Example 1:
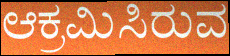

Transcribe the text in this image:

ಆಕ್ರಮಿಸಿರುವ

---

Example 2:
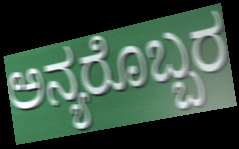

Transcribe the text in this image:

ಅನ್ಯರೊಬ್ಬರ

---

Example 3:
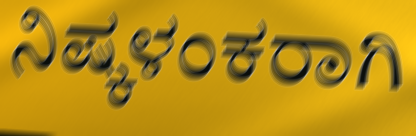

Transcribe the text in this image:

ನಿಷ್ಕಳಂಕರಾಗಿ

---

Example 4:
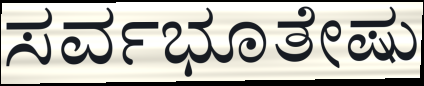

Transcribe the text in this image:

ಸರ್ವಭೂತೇಷು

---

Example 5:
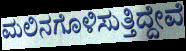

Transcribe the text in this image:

ಮಲಿನಗೊಳಿಸುತ್ತಿದ್ದೇವೆ